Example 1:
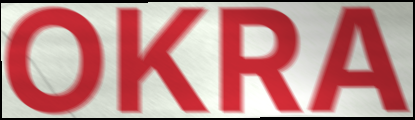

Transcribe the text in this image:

OKRA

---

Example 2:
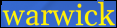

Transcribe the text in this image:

warwick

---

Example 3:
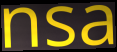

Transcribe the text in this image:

nsa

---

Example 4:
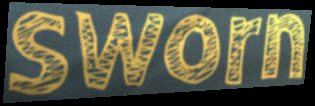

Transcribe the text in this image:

sworn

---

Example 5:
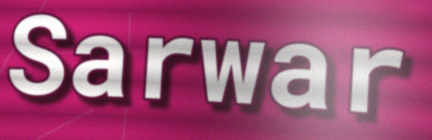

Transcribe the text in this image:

Sarwar